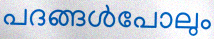
പദങ്ങൾപോലും